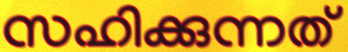
സഹിക്കുന്നത്